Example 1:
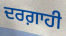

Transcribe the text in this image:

ਦਰਗ਼ਾਹੀ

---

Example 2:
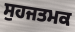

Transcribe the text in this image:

ਸੁਹਜਤਮਕ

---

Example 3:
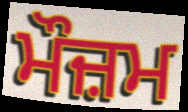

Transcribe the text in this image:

ਮੌਜ਼ਮ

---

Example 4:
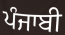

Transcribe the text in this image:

ਪੰਜਾਬੀ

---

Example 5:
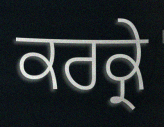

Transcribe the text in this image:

ਕਰਕ੍ਰੇ